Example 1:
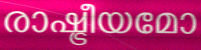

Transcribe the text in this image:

രാഷ്ട്രീയമോ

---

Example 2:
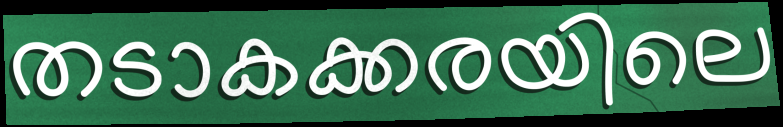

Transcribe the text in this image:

തടാകക്കരയിലെ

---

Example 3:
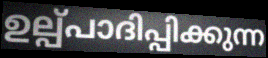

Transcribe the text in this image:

ഉല്പ്പാദിപ്പിക്കുന്ന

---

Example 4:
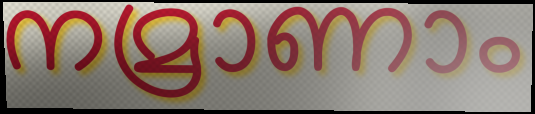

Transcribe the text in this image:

നമ്രാണാം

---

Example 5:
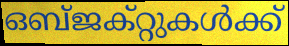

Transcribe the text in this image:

ഒബ്ജക്റ്റുകൾക്ക്